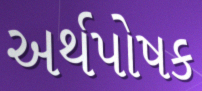
અર્થપોષક